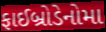
ફાઈબ્રોડેનોમા